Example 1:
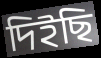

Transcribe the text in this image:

দিইছি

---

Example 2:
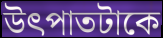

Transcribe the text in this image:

উৎপাতটাকে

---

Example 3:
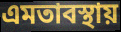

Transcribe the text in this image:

এমতাবস্থায়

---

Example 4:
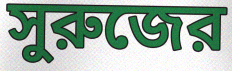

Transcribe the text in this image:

সুরুজের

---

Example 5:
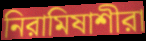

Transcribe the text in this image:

নিরামিষাশীরা